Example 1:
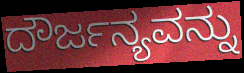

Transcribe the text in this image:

ದೌರ್ಜನ್ಯವನ್ನು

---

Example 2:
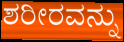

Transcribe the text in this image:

ಶರೀರವನ್ನು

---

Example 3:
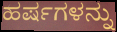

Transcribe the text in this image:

ಹರ್ಷಗಳನ್ನು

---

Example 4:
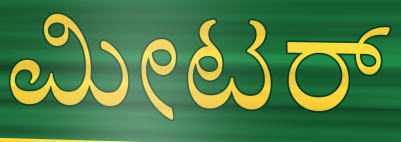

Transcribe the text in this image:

ಮೀಟರ್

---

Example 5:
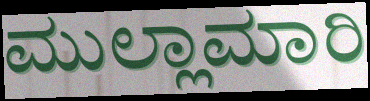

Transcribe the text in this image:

ಮುಲ್ಲಾಮಾರಿ